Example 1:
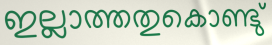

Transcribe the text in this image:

ഇല്ലാത്തതുകൊണ്ടു്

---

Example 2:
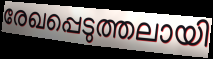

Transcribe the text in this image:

രേഖപ്പെടുത്തലായി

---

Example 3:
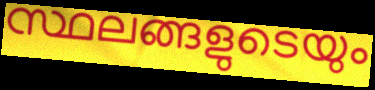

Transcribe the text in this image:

സ്ഥലങ്ങളുടെയും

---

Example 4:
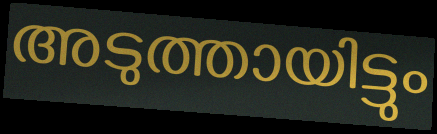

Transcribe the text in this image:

അടുത്തായിട്ടും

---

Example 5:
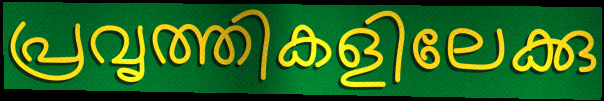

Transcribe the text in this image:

പ്രവൃത്തികളിലേക്കു